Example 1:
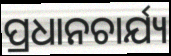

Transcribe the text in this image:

ପ୍ରଧାନଚାର୍ଯ୍ୟ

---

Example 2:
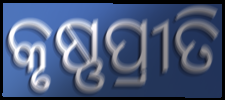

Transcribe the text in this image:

କୃଷ୍ଣପ୍ରୀତି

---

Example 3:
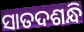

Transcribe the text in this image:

ସାତଦଶନ୍ଧି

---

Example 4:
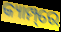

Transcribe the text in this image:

କ୍ୟାମ୍ପ୍‌ରେ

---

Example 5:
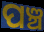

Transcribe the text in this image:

ପଞ୍ଚ